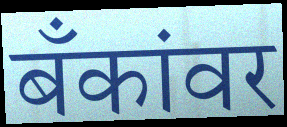
बँकांवर